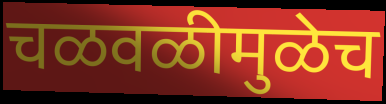
चळवळीमुळेच